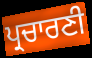
ਪ੍ਰਚਾਰਣੀ